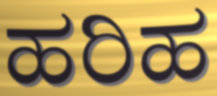
ಹರಿಹ